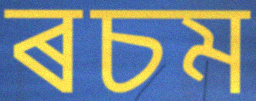
ৰচম